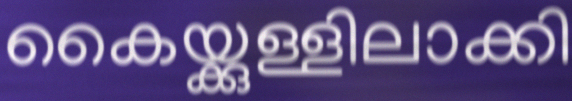
കൈയ്ക്കുള്ളിലാക്കി